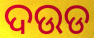
ଦଉଡ